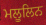
ਮਲੂਲਿਨ